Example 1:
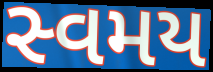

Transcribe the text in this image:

સ્વમય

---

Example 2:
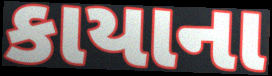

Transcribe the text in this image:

કાયાના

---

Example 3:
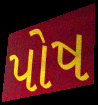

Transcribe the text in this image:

પોષ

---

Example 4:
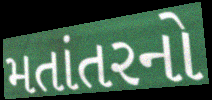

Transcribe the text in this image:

મતાંતરનો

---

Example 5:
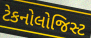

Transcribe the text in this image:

ટેકનોલોજિસ્ટ